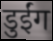
डुईंग